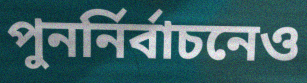
পুনর্নির্বাচনেও